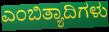
ಎಂಬಿತ್ಯಾದಿಗಳು